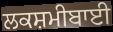
ਲਕਸ਼ਮੀਬਾਈ